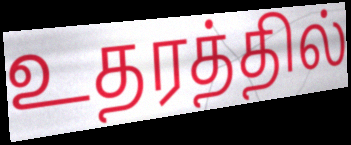
உதரத்தில்